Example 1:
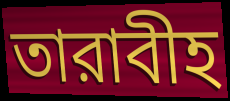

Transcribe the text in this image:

তারাবীহ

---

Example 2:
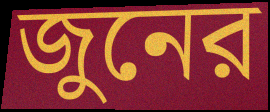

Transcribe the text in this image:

জুনের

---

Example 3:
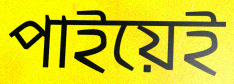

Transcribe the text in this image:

পাইয়েই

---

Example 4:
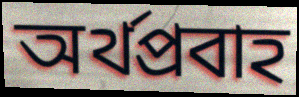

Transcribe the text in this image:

অর্থপ্রবাহ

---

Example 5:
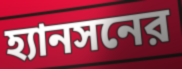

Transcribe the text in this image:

হ্যানসনের